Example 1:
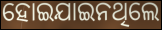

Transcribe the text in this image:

ହୋଇଯାଇନଥିଲେ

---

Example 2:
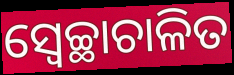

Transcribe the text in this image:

ସ୍ୱେଚ୍ଛାଚାଳିତ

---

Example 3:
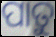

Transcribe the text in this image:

ପାତୁ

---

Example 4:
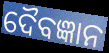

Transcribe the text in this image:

ଦୈବଜ୍ଞାନ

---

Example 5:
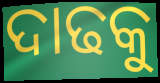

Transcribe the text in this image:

ଦାଢକୁ